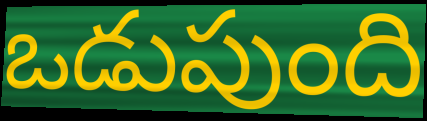
ఒడుపుంది